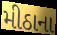
મીઠાના